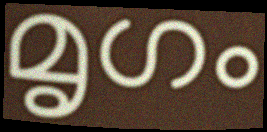
മൃഗം